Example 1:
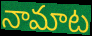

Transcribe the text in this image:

నామాట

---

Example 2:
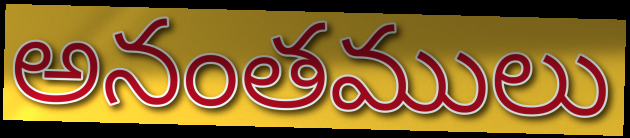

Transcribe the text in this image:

అనంతములు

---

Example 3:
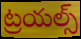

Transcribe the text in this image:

ట్రయల్స్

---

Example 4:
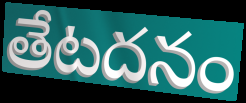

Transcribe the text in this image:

తేటదనం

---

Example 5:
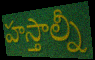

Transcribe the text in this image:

హస్తాల్నీ